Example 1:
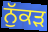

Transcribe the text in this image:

ਨੁੱਕਡ਼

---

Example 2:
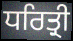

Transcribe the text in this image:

ਧਰਿਤ੍ਰੀ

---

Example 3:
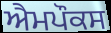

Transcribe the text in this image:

ਐਮਪੌਕਸ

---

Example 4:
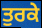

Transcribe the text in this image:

ਤੁਰਕੇ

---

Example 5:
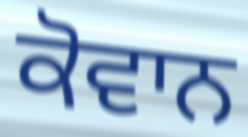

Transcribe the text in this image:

ਕੋਵਾਨ